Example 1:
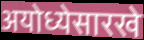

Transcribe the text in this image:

अयोध्येसारखे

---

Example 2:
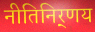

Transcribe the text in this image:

नीतिनिर्णय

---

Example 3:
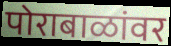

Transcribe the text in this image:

पोराबाळांवर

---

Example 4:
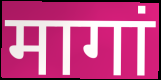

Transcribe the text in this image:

मागां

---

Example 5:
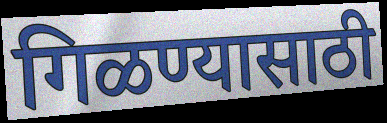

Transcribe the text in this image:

गिळण्यासाठी